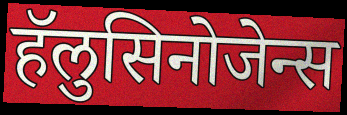
हॅलुसिनोजेन्स